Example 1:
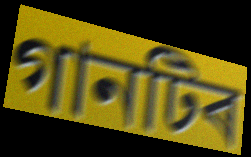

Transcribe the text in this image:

গানটিৰ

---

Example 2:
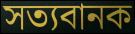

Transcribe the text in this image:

সত্যবানক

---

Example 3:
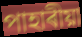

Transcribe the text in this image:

পাহাৰীয়া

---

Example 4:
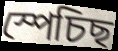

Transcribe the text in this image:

স্পেচিছ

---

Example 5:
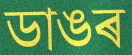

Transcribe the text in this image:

ডাঙৰ